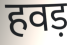
हवड़